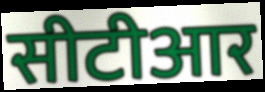
सीटीआर